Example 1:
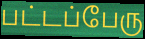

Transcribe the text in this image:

பட்டப்பேரு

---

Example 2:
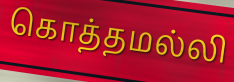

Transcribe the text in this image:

கொத்தமல்லி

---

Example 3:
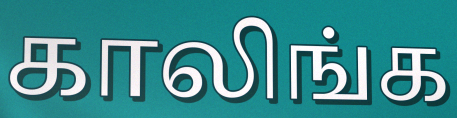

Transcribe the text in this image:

காலிங்க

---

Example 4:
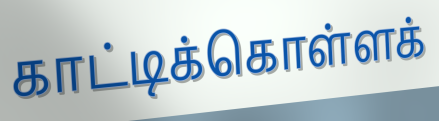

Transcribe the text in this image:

காட்டிக்கொள்ளக்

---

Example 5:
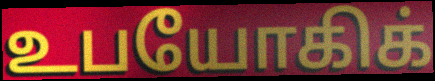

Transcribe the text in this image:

உபயோகிக்